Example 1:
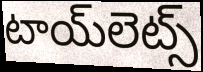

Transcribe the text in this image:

టాయ్‌లెట్స్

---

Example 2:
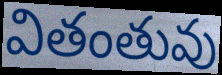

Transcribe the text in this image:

వితంతువు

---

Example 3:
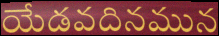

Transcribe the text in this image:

యేడవదినమున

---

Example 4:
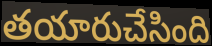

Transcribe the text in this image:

తయారుచేసింది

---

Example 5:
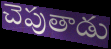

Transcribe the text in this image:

చెపుతాడు